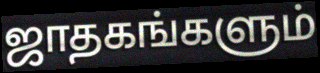
ஜாதகங்களும்